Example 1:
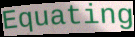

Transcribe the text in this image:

Equating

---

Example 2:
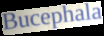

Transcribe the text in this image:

Bucephala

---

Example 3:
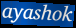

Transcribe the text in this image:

ayashok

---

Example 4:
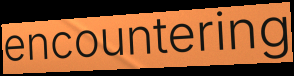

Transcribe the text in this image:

encountering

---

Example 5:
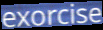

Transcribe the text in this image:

exorcise